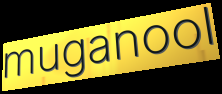
muganool